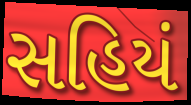
સહિયં